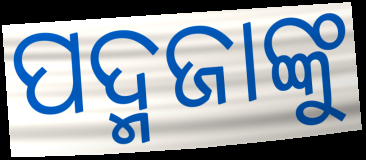
ପଦ୍ମଜାଙ୍କୁ